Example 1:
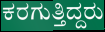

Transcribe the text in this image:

ಕರಗುತ್ತಿದ್ದರು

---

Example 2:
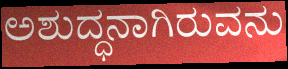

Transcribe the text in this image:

ಅಶುದ್ಧನಾಗಿರುವನು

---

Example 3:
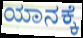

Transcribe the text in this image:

ಯಾನಕ್ಕೆ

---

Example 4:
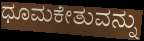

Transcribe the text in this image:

ಧೂಮಕೇತುವನ್ನು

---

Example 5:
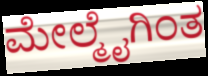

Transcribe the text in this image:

ಮೇಲ್ಮೈಗಿಂತ